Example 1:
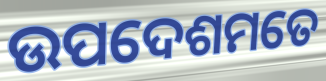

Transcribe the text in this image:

ଉପଦେଶମତେ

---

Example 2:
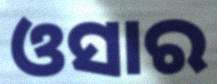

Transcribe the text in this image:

ଓସାର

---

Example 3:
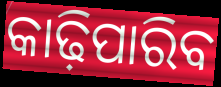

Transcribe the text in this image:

କାଢ଼ିପାରିବ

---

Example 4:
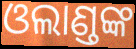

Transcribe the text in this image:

ଓଲାଣ୍ଡଙ୍କ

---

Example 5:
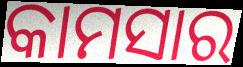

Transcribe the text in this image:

କାମସାର